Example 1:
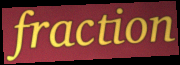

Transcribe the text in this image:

fraction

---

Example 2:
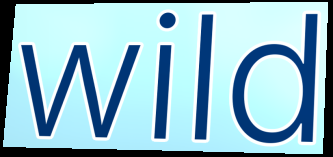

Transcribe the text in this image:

wild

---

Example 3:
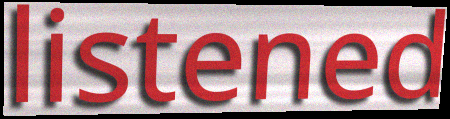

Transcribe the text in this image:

listened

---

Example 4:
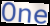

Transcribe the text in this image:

One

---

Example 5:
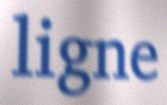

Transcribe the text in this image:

ligne